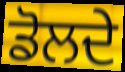
ਡੋਲਦੇ